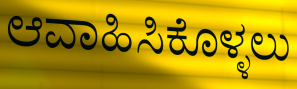
ಆವಾಹಿಸಿಕೊಳ್ಳಲು